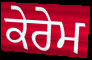
ਕੇਰੇਮ